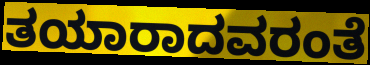
ತಯಾರಾದವರಂತೆ